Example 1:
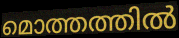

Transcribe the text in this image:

മൊത്തത്തിൽ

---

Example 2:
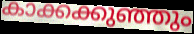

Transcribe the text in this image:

കാക്കക്കുഞ്ഞും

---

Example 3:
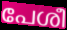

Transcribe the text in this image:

പേശീ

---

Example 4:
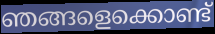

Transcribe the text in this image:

ഞങ്ങളെക്കൊണ്ട്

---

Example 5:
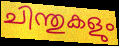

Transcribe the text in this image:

ചിന്തുകളും